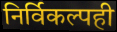
निर्विकल्पही